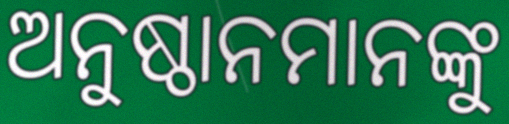
ଅନୁଷ୍ଠାନମାନଙ୍କୁ